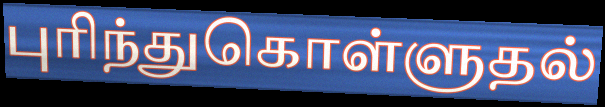
புரிந்துகொள்ளுதல்